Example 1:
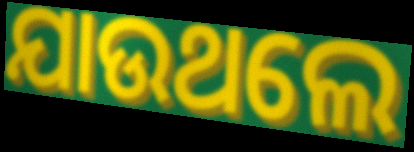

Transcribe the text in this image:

ଯାଉଥଲେ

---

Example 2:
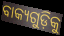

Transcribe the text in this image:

ବାକ୍ୟଗୁଡ଼ିକୁ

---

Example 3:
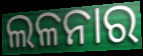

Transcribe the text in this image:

ଲଳନାର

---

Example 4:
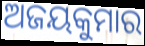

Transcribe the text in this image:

ଅଜୟକୁମାର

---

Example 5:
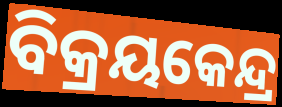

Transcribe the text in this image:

ବିକ୍ରୟକେନ୍ଦ୍ର